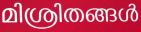
മിശ്രിതങ്ങൾ